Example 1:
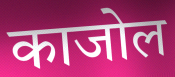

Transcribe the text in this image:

काजोल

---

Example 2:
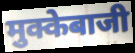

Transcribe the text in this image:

मुक्केबाजी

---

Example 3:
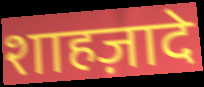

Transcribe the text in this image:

शाहज़ादे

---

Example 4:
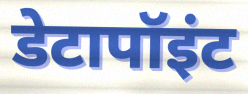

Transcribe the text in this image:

डेटापॉइंट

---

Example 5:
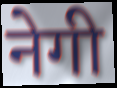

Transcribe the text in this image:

नेगी